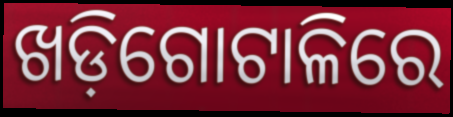
ଖଡ଼ିଗୋଟାଳିରେ